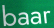
baar